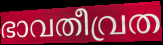
ഭാവതീവ്രത